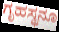
ಗೃಹಸ್ಥನೂ